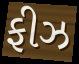
ફીઝ